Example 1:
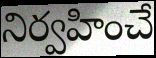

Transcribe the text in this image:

నిర్వహించే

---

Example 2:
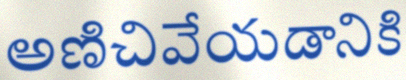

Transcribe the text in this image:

అణిచివేయడానికి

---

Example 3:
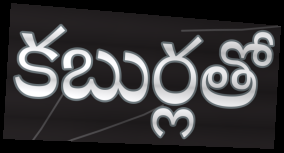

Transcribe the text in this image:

కబుర్లతో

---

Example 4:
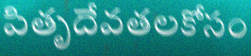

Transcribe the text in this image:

పితృదేవతలకోసం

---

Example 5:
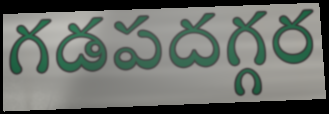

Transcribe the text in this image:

గడపదగ్గర